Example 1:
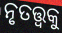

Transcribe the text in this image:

ନୃତତ୍ତ୍ଵକୁ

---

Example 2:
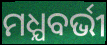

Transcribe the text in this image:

ମଧ୍ଯବର୍ଭୀ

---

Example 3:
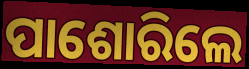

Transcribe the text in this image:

ପାଶୋରିଲେ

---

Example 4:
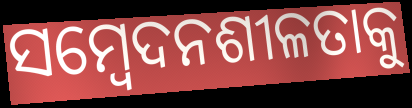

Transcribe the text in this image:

ସମ୍ବେଦନଶୀଳତାକୁ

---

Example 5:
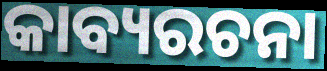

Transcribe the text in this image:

କାବ୍ୟରଚନା